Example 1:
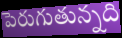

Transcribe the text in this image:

పెరుగుతున్నది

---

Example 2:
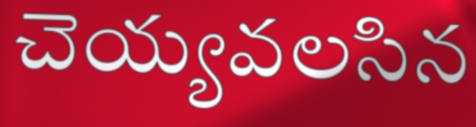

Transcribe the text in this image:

చెయ్యవలసిన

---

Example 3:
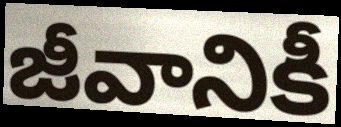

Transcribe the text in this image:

జీవానికీ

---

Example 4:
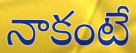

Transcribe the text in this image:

నాకంటే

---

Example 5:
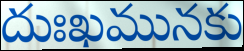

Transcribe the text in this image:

దుఃఖమునకు